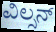
ವಿಲ್ಸನ್